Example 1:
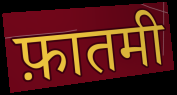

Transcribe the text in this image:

फ़ातमी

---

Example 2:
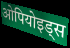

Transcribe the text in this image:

ओपियोइड्स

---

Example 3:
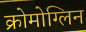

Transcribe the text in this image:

क्रोमोग्लिन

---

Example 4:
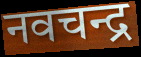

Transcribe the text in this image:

नवचन्द्र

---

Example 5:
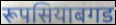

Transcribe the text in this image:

रूपसियाबगड